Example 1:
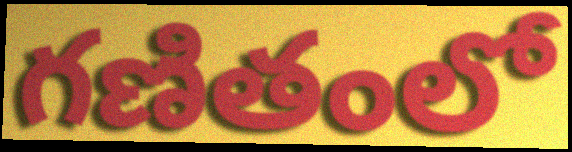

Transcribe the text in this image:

గణితంలో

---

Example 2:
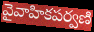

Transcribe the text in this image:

వైవాహికపర్వణి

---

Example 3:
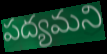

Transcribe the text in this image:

పద్యమని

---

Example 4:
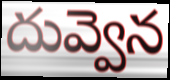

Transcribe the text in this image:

దువ్వెన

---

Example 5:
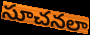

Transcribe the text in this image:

సూచనలా